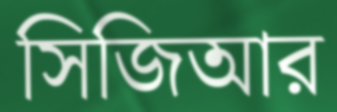
সিজিআর